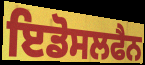
ਇਡੋਸਲਫੈਨ